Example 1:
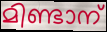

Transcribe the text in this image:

മിണ്ടാന്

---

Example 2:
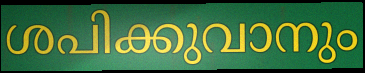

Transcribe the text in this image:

ശപിക്കുവാനും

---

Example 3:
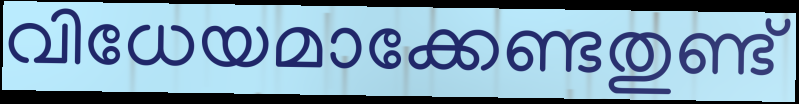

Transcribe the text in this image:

വിധേയമാക്കേണ്ടതുണ്ട്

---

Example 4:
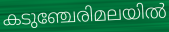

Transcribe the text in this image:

കടുഞ്ചേരിമലയിൽ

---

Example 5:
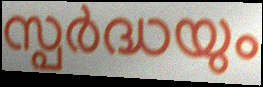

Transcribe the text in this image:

സ്പർദ്ധയും